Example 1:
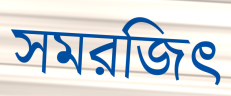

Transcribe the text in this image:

সমরজিৎ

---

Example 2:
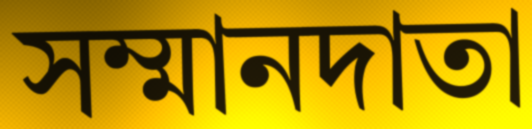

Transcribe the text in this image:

সম্মানদাতা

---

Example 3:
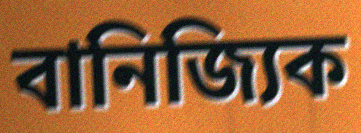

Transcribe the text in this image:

বানিজ্যিক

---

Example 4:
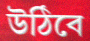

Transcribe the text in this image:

উঠিবে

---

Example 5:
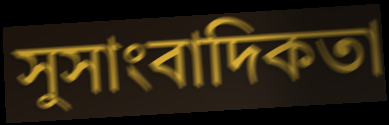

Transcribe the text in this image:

সুসাংবাদিকতা